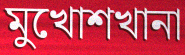
মুখোশখানা